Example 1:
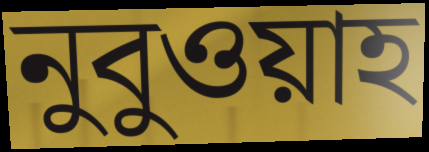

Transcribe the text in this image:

নুবুওয়াহ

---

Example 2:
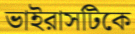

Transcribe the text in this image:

ভাইরাসটিকে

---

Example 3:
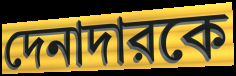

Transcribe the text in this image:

দেনাদারকে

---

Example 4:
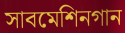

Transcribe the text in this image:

সাবমেশিনগান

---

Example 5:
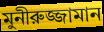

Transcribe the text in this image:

মুনীরুজ্জামান